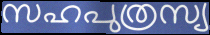
സഹപുത്രസ്യ